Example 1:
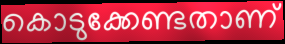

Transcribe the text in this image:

കൊടുക്കേണ്ടതാണ്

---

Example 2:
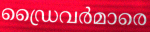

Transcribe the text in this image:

ഡ്രൈവർമാരെ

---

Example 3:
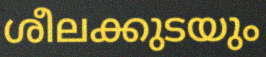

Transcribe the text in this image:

ശീലക്കുടയും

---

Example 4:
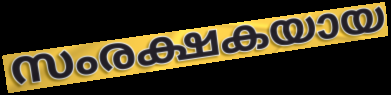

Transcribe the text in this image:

സംരക്ഷകയായ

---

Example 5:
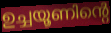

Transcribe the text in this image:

ഉച്ചയൂണിന്റെ